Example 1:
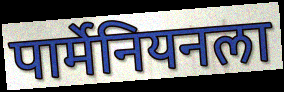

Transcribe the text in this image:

पार्मेनियनला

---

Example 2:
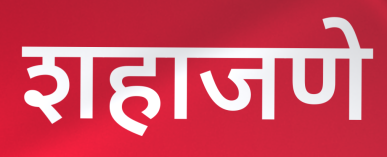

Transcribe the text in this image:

शहाजणे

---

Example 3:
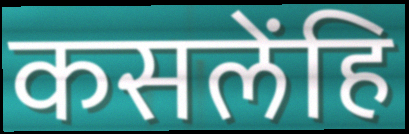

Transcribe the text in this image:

कसलेंहि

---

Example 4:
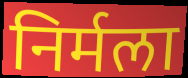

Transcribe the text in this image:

निर्मला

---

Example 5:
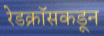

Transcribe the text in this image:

रेडक्रॉसकडून